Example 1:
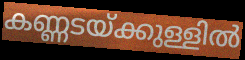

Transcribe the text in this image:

കണ്ണടയ്ക്കുള്ളിൽ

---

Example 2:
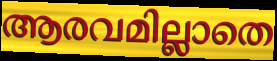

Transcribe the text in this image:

ആരവമില്ലാതെ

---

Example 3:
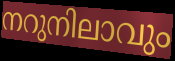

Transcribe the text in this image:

നറുനിലാവും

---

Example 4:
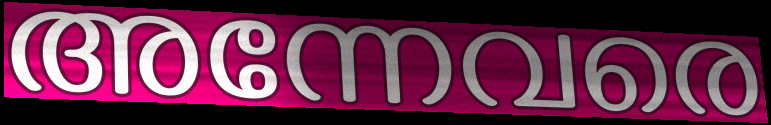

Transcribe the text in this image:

അന്നേവരെ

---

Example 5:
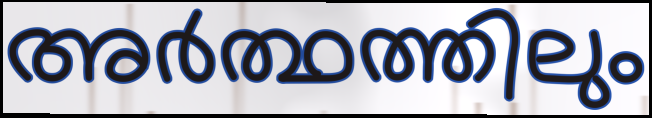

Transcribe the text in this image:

അർത്ഥത്തിലും